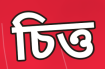
চিত্ত